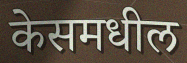
केसमधील